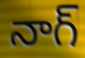
నాగ్